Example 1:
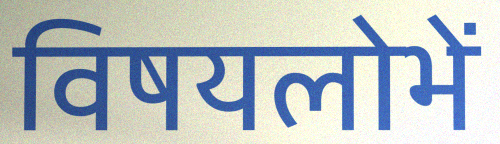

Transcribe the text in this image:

विषयलोभें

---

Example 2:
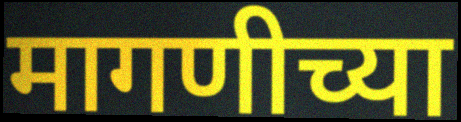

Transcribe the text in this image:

मागणीच्या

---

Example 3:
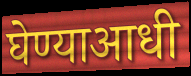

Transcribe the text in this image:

घेण्याआधी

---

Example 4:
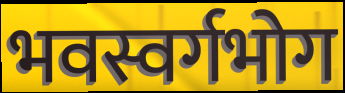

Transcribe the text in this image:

भवस्वर्गभोग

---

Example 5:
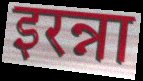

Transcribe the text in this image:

इरन्ना